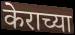
केराच्या